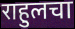
राहुलचा